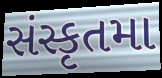
સંસ્કૃતમા